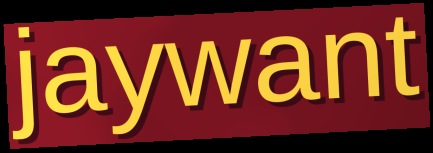
jaywant